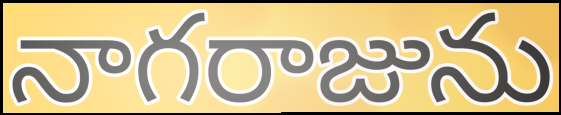
నాగరాజును